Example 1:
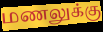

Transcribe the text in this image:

மணலுக்கு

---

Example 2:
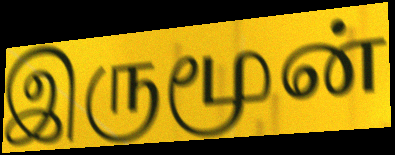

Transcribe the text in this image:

இருமூன்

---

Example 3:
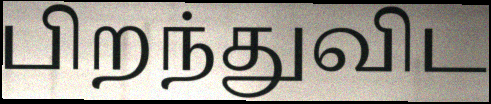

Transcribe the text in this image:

பிறந்துவிட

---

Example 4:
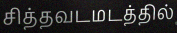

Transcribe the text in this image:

சித்தவடமடத்தில்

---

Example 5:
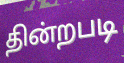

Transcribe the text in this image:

தின்றபடி